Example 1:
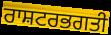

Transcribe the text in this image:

ਰਾਸ਼ਟਰਭਗਤੀ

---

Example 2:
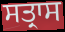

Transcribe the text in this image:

ਸਤ੍ਰਾਸ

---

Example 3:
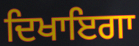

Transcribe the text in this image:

ਦਿਖਾਇਗਾ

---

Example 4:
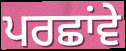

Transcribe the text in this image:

ਪਰਛਾਂਵੇ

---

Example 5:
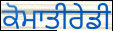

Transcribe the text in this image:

ਕੋਮਾਤੀਰੇਡੀ